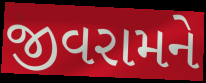
જીવરામને